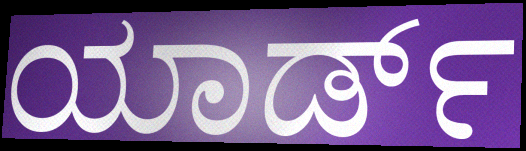
ಯಾರ್ಡ್